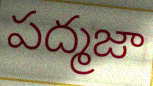
పద్మజా